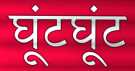
घूंटघूंट